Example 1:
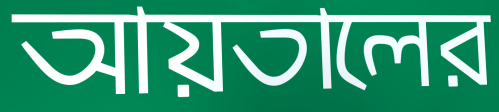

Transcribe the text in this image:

আয়তালের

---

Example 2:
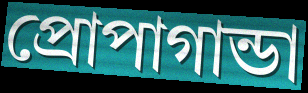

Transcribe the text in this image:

প্রোপাগান্ডা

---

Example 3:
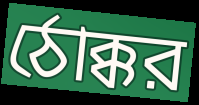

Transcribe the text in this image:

ঠোক্কর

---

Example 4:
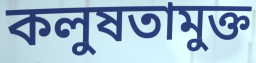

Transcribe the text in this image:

কলুষতামুক্ত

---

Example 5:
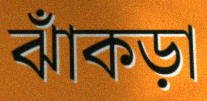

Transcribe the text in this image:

ঝাঁকড়া